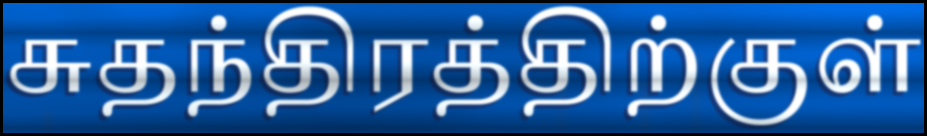
சுதந்திரத்திற்குள்